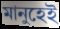
মানুহেই